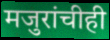
मजुरांचीही